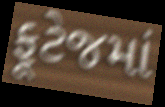
ફૂટેજમાં